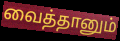
வைத்தானும்